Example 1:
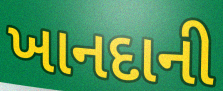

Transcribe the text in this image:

ખાનદાની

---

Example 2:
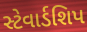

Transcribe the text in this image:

સ્ટેવાર્ડશિપ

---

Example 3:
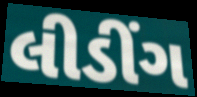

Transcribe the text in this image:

લીડીંગ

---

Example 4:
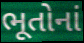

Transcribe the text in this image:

ભૂતોનાં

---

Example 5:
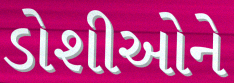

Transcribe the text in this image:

ડોશીઓને